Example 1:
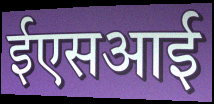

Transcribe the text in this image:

ईएसआई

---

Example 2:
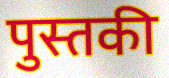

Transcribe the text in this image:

पुस्तकी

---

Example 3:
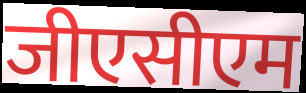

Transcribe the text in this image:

जीएसीएम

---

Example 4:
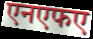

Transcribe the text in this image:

एनएफए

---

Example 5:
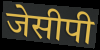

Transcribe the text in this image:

जेसीपी